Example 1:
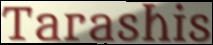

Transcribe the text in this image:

Tarashis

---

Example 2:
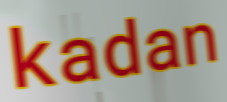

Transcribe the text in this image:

kadan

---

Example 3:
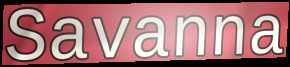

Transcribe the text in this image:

Savanna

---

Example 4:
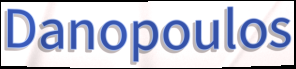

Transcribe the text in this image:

Danopoulos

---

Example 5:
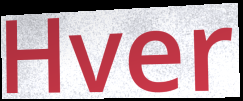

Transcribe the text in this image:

Hver